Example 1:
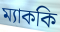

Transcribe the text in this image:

ম্যাককি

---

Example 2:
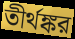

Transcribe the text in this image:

তীর্থঙ্কর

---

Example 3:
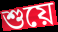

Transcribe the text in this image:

শুয়ে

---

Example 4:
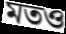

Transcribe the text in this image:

মতও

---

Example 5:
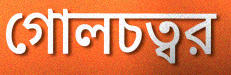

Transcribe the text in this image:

গোলচত্বর